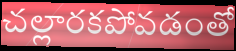
చల్లారకపోవడంతో